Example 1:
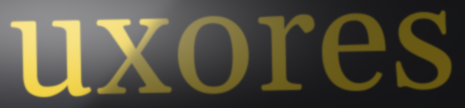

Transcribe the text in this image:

uxores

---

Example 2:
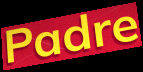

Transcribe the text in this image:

Padre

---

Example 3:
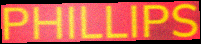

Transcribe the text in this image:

PHILLIPS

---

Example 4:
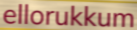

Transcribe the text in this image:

ellorukkum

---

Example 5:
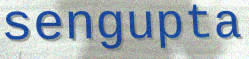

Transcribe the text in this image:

sengupta